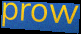
prow